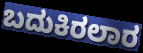
ಬದುಕಿರಲಾರ